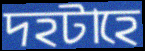
দহটাহে